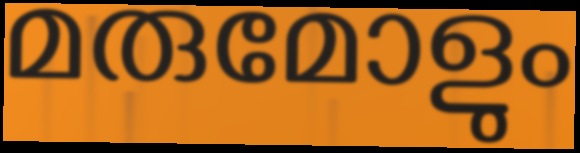
മരുമോളും